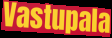
Vastupala